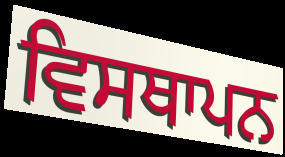
ਵਿਸਥਾਪਨ